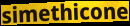
simethicone